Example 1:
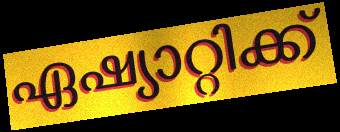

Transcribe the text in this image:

ഏഷ്യാറ്റിക്ക്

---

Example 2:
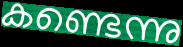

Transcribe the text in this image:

കണ്ടെന്നു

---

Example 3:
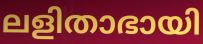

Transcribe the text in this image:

ലളിതാഭായി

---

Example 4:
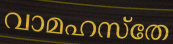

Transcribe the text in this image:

വാമഹസ്തേ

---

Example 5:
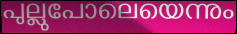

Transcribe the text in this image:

പുല്ലുപോലെയെന്നും